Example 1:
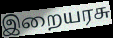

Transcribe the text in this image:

இறையரசு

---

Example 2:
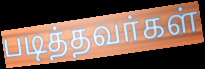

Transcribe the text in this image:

படித்தவர்கள்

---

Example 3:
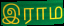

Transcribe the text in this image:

இராம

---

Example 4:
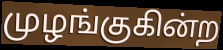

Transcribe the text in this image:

முழங்குகின்ற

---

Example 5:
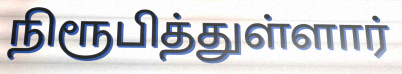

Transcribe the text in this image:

நிரூபித்துள்ளார்